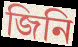
জিনি